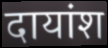
दायांश